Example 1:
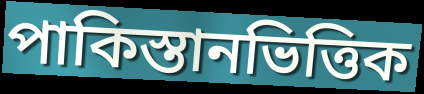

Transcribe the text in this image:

পাকিস্তানভিত্তিক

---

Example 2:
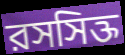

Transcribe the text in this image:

রসসিক্ত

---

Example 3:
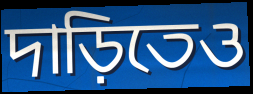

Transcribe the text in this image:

দাড়িতেও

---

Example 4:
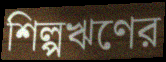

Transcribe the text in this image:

শিল্পঋণের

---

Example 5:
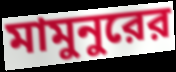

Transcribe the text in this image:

মামুনুরের